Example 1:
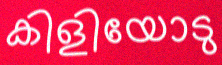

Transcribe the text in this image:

കിളിയോടു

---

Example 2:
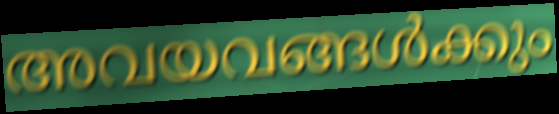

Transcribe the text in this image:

അവയവങ്ങൾക്കും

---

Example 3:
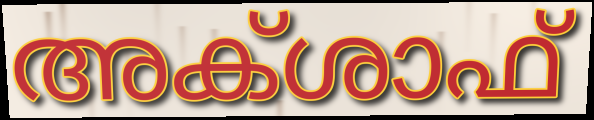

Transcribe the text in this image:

അക്ശാഫ്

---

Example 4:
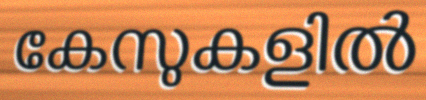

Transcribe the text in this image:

കേസുകളിൽ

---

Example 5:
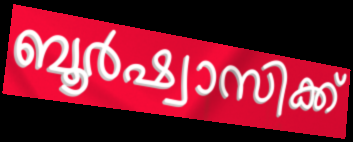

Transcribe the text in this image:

ബൂർഷ്വാസിക്ക്